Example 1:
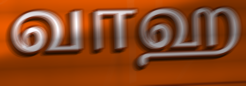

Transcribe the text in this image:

வாஹ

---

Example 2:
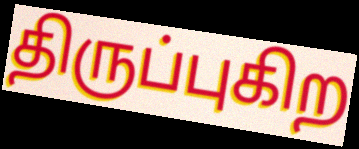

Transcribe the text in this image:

திருப்புகிற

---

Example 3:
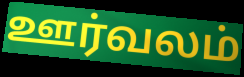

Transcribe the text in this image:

ஊர்வலம்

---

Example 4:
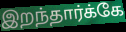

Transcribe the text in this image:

இறந்தார்க்கே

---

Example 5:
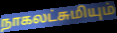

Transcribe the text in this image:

நாகலட்சுமியும்